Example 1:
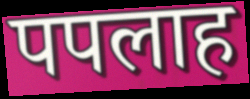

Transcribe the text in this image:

पपलाह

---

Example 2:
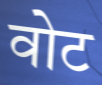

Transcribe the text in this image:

वोट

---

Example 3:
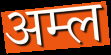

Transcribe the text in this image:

अम्ल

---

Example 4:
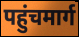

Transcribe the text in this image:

पहुंचमार्ग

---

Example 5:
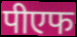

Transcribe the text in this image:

पीएफ